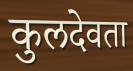
कुलदेवता